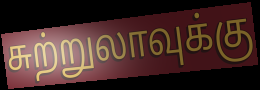
சுற்றுலாவுக்கு